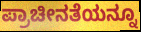
ಪ್ರಾಚೀನತೆಯನ್ನೂ